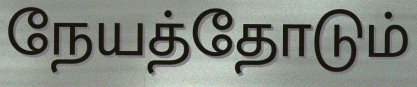
நேயத்தோடும்